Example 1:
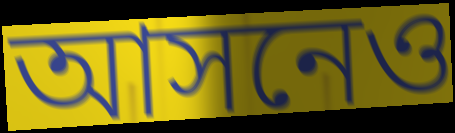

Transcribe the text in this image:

আসনেও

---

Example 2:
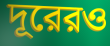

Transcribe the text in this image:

দূরেরও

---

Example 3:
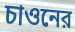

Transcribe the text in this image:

চাওনের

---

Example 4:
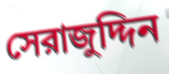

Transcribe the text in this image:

সেরাজুদ্দিন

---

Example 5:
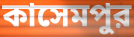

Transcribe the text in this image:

কাসেমপুর